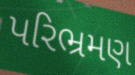
પરિભ્રમણ